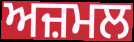
ਅਜ਼ਮਲ